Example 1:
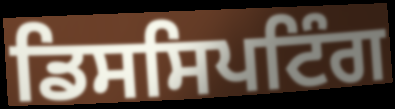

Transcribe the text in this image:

ਡਿਸਸਿਪਟਿੰਗ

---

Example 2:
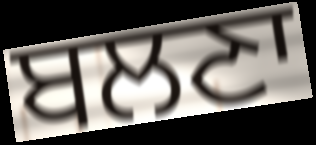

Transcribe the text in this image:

ਬਲਣਾ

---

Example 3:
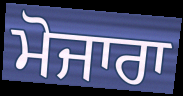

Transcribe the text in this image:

ਮੋਜਾਰਾ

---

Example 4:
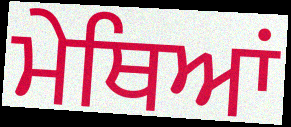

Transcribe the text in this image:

ਮੇਥਿਆਂ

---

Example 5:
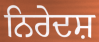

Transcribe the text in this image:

ਨਿਰੇਦਸ਼